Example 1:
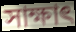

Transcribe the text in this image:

সাক্ষাৎ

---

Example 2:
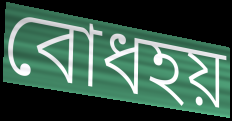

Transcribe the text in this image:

বোধহয়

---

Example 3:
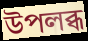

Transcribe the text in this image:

উপলব্ধ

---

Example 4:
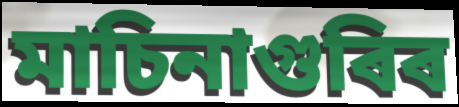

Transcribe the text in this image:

মাচিনাগুৰিৰ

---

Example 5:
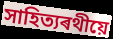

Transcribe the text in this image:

সাহিত্যৰথীয়ে